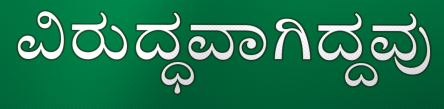
ವಿರುದ್ಧವಾಗಿದ್ದವು